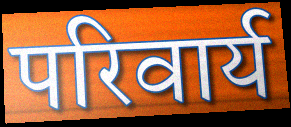
परिवार्य